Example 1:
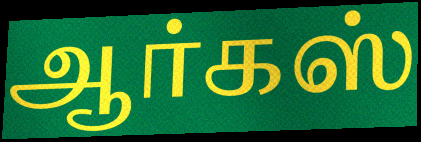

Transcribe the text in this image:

ஆர்கஸ்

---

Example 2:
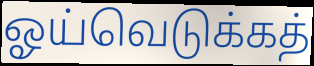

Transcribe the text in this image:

ஓய்வெடுக்கத்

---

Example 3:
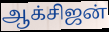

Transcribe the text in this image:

ஆக்சிஜன்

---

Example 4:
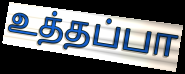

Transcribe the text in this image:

உத்தப்பா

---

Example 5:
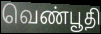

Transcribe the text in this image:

வெண்பூதி